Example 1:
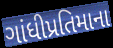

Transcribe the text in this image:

ગાંધીપ્રતિમાના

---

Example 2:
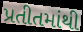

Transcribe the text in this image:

પ્રતીતમાંથી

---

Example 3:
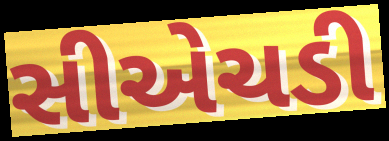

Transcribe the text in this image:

સીએચડી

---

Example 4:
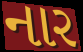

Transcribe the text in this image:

નાર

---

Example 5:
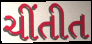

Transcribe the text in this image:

ચીંતીત